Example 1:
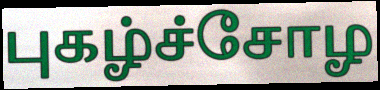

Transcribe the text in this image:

புகழ்ச்சோழ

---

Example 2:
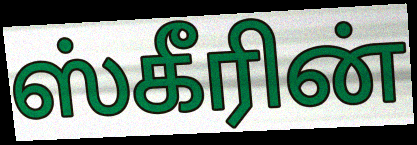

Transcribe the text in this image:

ஸ்கீரின்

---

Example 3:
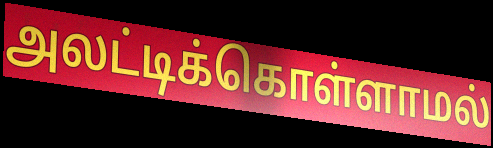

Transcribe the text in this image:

அலட்டிக்கொள்ளாமல்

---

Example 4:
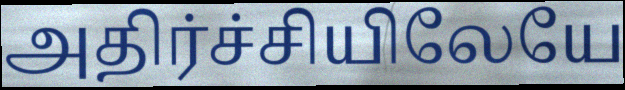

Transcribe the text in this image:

அதிர்ச்சியிலேயே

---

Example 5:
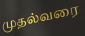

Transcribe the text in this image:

முதல்வரை